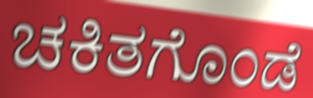
ಚಕಿತಗೊಂಡೆ